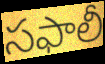
సఫాలీ